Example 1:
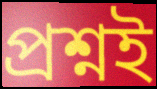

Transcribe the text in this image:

প্রশ্নই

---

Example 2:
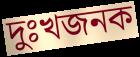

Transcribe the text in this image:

দুঃখজনক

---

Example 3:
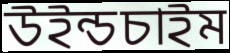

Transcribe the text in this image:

উইন্ডচাইম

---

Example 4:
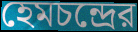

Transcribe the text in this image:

হেমচন্দ্রের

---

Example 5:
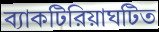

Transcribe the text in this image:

ব্যাকটিরিয়াঘটিত